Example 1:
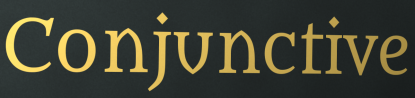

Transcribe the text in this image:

Conjunctive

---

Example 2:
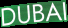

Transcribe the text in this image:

DUBAI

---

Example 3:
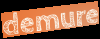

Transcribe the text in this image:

demure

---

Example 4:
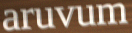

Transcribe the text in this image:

aruvum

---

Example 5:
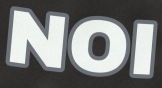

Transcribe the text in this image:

NOI